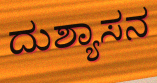
ದುಶ್ಯಾಸನ